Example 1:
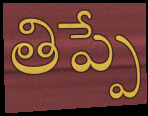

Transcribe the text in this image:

తిప్పే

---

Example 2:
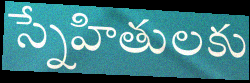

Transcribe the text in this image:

స్నేహితులకు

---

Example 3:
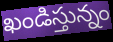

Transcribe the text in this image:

ఖండిస్తున్నం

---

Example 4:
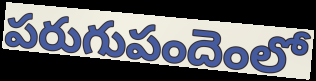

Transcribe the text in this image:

పరుగుపందెంలో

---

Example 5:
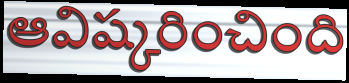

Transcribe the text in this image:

ఆవిష్కరించింది